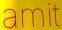
amit